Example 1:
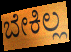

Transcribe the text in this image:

ಬೇಕಿಲ್ಲ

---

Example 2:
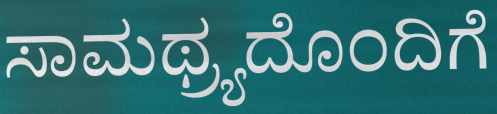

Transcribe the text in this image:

ಸಾಮಥ್ರ್ಯದೊಂದಿಗೆ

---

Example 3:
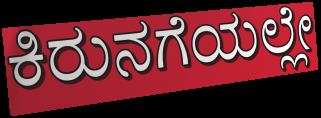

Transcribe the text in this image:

ಕಿರುನಗೆಯಲ್ಲೇ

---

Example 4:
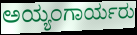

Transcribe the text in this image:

ಅಯ್ಯಂಗಾರ್ಯರು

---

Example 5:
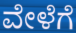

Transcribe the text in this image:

ವೇಳೆಗೆ